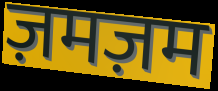
ज़मज़म